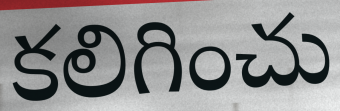
కలిగించు